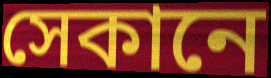
সেকানে